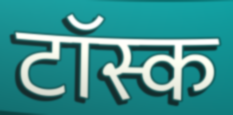
टॉस्‍क